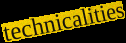
technicalities